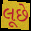
લૂછે